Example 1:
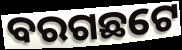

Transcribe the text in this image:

ବରଗଛଟେ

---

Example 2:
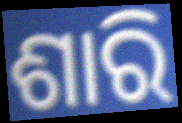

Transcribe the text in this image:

ଶାରି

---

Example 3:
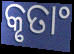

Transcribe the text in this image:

କୃତାଂ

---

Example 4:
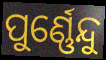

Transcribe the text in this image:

ପୁର୍ଣ୍ଣେନ୍ଦୁ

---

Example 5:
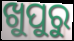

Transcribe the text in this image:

ଖୁପୁରୁ